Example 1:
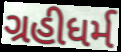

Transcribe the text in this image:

ગ્રહીધર્મ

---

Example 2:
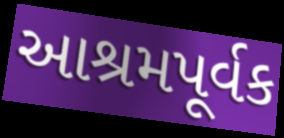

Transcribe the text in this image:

આશ્રમપૂર્વક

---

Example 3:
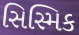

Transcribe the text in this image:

સિસ્મિક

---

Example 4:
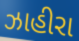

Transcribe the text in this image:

ઝાહીરા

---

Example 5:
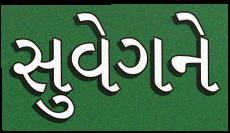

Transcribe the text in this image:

સુવેગને